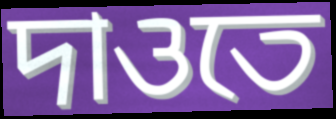
দাওতে